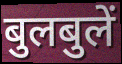
बुलबुलें